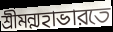
শ্রীমন্মহাভারতে